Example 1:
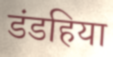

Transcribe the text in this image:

डंडहिया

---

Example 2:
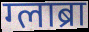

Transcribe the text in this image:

ग्लाब्रा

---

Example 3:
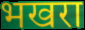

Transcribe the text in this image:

भखरा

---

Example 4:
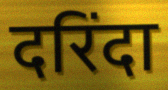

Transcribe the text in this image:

दरिंदा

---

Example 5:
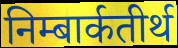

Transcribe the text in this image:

निम्बार्कतीर्थ